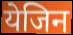
येजिन